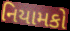
નિયામકો